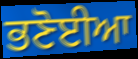
ਭਣੋਈਆ